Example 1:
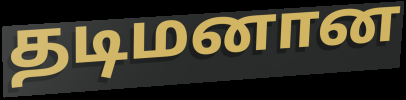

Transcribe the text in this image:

தடிமனான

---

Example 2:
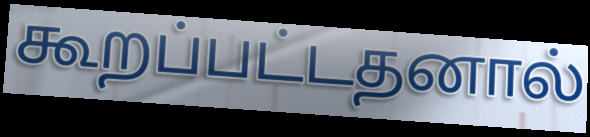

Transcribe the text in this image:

கூறப்பட்டதனால்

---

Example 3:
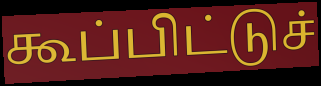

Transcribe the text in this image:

கூப்பிட்டுச்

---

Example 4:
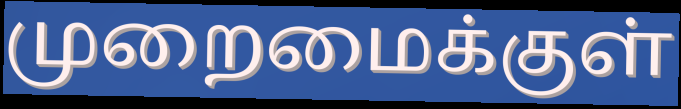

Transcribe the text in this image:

முறைமைக்குள்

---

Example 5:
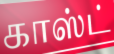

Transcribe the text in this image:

காஸ்ட்